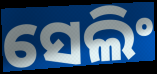
ସେଲିଂ